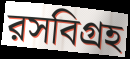
রসবিগ্রহ